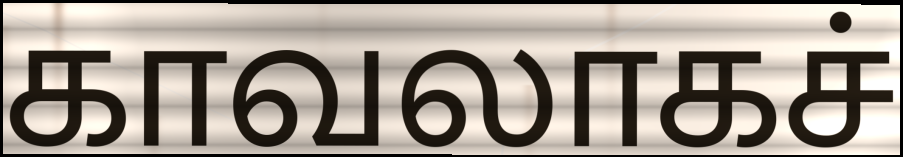
காவலாகச்